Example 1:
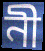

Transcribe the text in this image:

নী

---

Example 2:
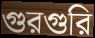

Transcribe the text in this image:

গুরগুরি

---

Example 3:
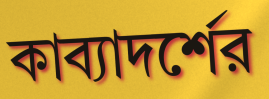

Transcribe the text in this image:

কাব্যাদর্শের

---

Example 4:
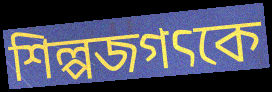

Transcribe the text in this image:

শিল্পজগৎকে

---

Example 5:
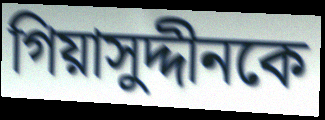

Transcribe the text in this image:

গিয়াসুদ্দীনকে